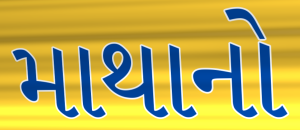
માથાનો